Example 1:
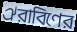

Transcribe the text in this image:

ঐরাবিণের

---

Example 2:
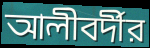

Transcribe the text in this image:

আলীবর্দীর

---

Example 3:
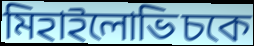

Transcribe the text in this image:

মিহাইলোভিচকে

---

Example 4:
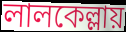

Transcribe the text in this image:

লালকেল্লায়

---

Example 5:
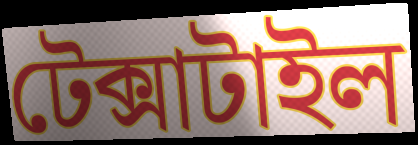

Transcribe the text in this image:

টেক্সাটাইল